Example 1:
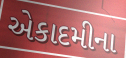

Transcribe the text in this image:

એકાદમીના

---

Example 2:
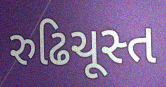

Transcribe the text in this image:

રુઢિચૂસ્ત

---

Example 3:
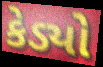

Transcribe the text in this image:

કેડ્યો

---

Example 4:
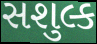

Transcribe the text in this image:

સશુલ્ક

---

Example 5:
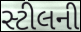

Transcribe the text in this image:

સ્ટીલની